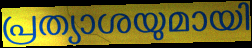
പ്രത്യാശയുമായി